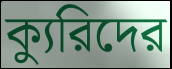
ক্যুরিদের